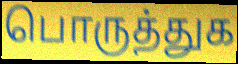
பொருத்துக